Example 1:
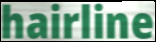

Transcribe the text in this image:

hairline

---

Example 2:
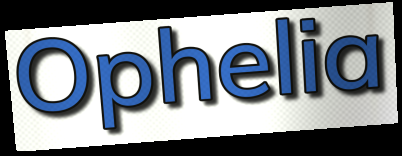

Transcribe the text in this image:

Ophelia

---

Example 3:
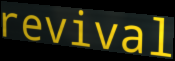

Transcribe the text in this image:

revival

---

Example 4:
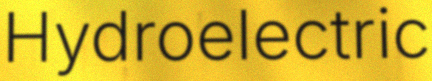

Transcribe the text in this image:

Hydroelectric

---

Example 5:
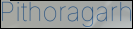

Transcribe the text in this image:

Pithoragarh